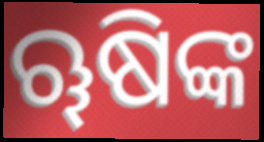
ୠଷିଙ୍କ